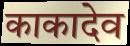
काकादेव